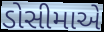
ડોસીમાએ